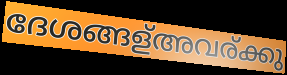
ദേശങ്ങള്അവര്ക്കു